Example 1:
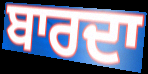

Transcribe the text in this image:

ਬਾਰਦਾ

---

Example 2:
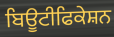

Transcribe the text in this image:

ਬਿਊਟੀਫਿਕੇਸ਼ਨ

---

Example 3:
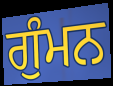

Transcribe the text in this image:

ਗੁੰਮਨ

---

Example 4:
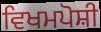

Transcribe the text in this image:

ਵਿਖਮਪੋਸ਼ੀ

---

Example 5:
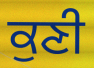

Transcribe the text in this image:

ਕੁਣੀ